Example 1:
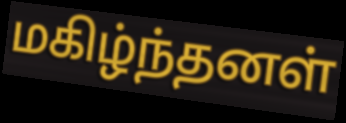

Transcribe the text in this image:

மகிழ்ந்தனள்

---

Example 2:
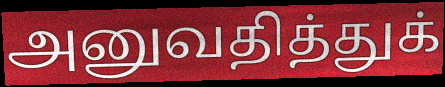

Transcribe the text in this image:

அனுவதித்துக்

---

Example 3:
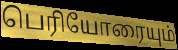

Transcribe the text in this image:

பெரியோரையும்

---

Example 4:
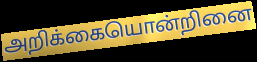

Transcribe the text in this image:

அறிக்கையொன்றினை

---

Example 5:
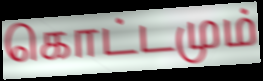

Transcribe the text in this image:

கொட்டமும்